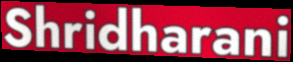
Shridharani